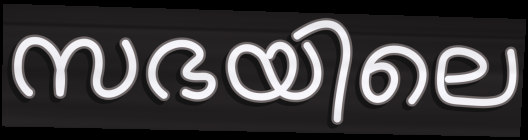
സഭയിലെ